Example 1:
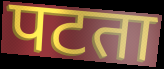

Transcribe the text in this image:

पटता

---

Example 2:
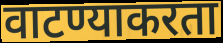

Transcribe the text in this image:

वाटण्याकरता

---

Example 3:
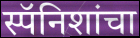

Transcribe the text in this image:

स्पॅनिशांचा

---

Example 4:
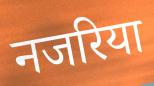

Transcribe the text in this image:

नजरिया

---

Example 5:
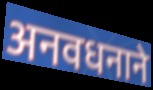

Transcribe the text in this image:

अनवधनाने